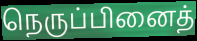
நெருப்பினைத்